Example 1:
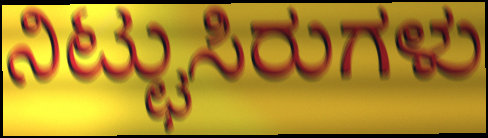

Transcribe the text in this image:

ನಿಟ್ಟುಸಿರುಗಳು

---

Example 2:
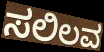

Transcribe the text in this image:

ಸಲಿಲವ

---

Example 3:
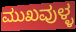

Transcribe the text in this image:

ಮುಖವುಳ್ಳ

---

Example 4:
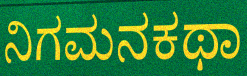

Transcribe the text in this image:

ನಿಗಮನಕಥಾ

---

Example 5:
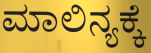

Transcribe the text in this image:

ಮಾಲಿನ್ಯಕ್ಕೆ